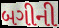
બગીની